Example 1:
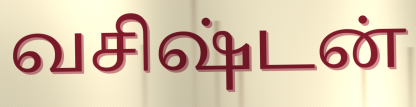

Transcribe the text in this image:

வசிஷ்டன்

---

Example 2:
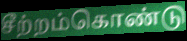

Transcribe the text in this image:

சீற்றம்கொண்டு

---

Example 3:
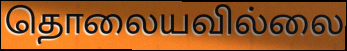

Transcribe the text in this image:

தொலையவில்லை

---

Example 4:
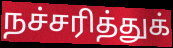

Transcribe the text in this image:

நச்சரித்துக்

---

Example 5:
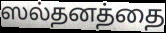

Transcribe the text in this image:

ஸல்தனத்தை